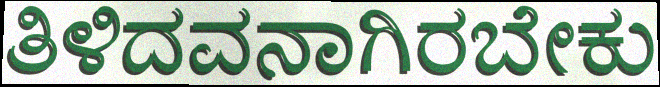
ತಿಳಿದವನಾಗಿರಬೇಕು